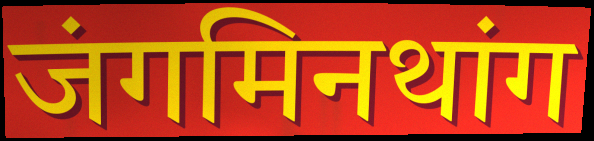
जंगमिनथांग